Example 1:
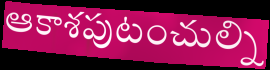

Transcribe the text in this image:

ఆకాశపుటంచుల్ని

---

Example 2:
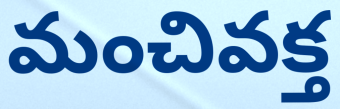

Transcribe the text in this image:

మంచివక్త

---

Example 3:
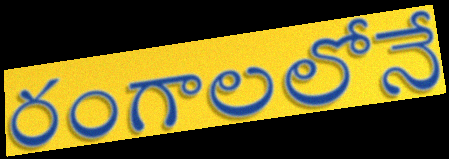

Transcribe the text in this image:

రంగాలలోనే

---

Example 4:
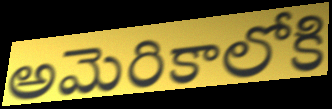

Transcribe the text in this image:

అమెరికాలోకి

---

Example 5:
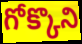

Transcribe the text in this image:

గోక్కొని